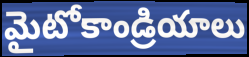
మైటోకాండ్రియాలు